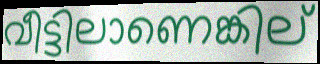
വീട്ടിലാണെങ്കില്